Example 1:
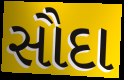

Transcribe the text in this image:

સૌદા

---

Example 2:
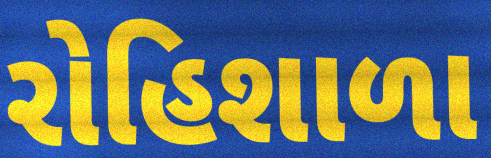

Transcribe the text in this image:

રોહિશાળા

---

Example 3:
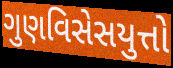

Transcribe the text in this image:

ગુણવિસેસયુત્તો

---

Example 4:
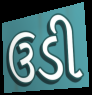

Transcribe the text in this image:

ઉડી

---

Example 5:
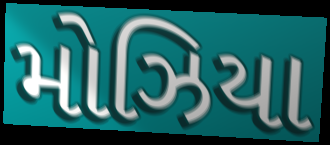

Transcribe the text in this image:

મોઝિયા